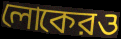
লোকেরও